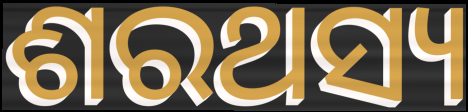
ଶରଥସ୍ୟ